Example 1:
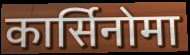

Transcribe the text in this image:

कार्सिनोमा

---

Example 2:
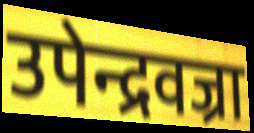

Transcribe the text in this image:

उपेन्द्रवज्रा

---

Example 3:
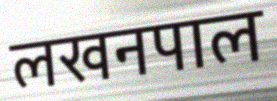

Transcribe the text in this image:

लखनपाल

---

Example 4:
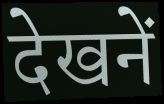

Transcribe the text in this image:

देखनें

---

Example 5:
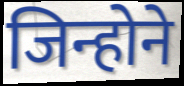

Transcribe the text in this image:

जिन्‍होने